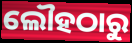
ଲୌହଠାରୁ